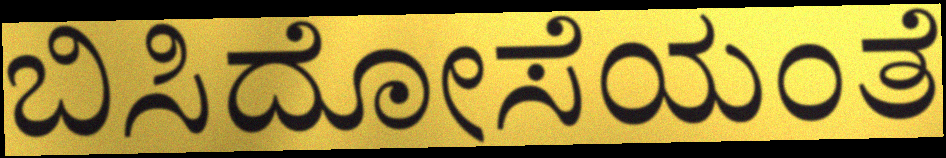
ಬಿಸಿದೋಸೆಯಂತೆ